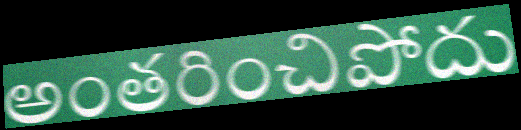
అంతరించిపోదు